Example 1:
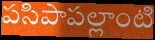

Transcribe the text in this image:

పసిపాపల్లాంటి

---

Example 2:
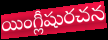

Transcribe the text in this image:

యింగ్లీషురచన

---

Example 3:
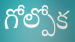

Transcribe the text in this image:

గోల్పోక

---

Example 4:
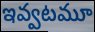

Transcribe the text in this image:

ఇవ్వటమూ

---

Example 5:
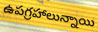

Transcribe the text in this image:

ఉపగ్రహాలున్నాయి